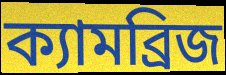
ক্যামব্রিজ